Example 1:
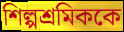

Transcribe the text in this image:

শিল্পশ্রমিককে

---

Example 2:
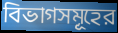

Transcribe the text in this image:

বিভাগসমূহের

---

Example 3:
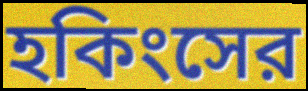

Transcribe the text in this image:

হকিংসের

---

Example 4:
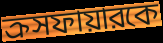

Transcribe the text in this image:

ক্রসফায়ারকে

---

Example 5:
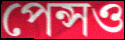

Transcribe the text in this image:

পেন্সও